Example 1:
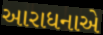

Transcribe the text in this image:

આરાધનાએ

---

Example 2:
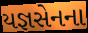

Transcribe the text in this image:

યજ્ઞસેનના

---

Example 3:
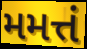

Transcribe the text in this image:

મમત્તં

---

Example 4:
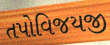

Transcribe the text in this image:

તપોવિજયજી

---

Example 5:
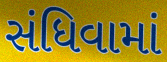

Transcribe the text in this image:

સંધિવામાં